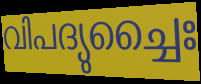
വിപദ്യുച്ചൈഃ